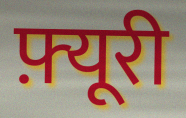
फ़्यूरी